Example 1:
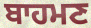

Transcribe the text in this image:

ਬਾਹਮਣ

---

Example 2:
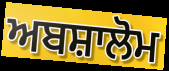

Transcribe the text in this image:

ਅਬਸ਼ਾਲੋਮ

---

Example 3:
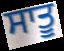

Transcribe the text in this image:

ਸਾਤੂ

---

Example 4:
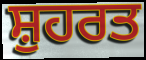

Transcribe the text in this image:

ਸ਼ੁਹਰਤ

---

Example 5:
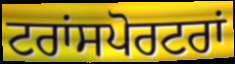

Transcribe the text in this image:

ਟਰਾਂਸਪੋਰਟਰਾਂ